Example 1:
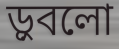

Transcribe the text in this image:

ড়ুবলো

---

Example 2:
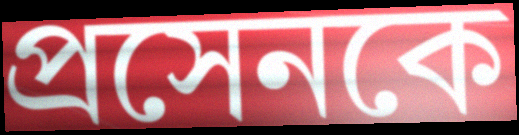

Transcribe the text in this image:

প্রসেনকে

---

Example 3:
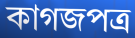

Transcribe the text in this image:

কাগজপত্র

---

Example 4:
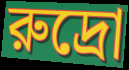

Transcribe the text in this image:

রুদ্রো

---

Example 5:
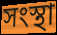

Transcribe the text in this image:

সংস্থা